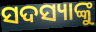
ସଦସ୍ୟାଙ୍କୁ